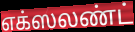
எக்ஸலண்ட்